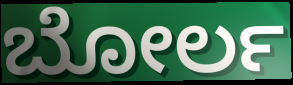
ಬೋರ್ಲ